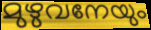
മുഴുവനേയും